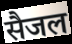
सैजल